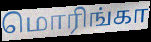
மொரிங்கா